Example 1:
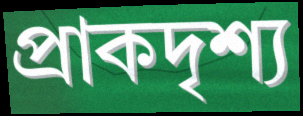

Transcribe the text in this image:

প্রাকদৃশ্য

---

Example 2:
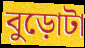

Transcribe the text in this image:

বুড়োটা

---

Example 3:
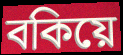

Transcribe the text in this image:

বকিয়ে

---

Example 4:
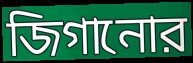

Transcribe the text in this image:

জিগানোর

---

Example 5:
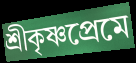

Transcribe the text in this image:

শ্রীকৃষ্ণপ্রেমে